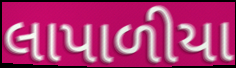
લાપાળીયા